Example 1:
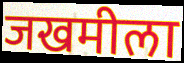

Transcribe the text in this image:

जखमीला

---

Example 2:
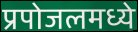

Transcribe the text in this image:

प्रपोजलमध्ये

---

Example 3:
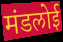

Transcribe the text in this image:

मंडलोई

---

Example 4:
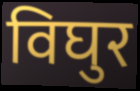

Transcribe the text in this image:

विघुर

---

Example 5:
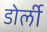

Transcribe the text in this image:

डोर्ली